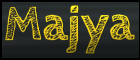
Majya